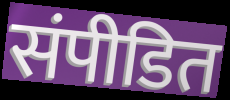
संपीडित